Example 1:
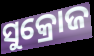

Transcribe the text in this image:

ସୁକ୍ରୋଜ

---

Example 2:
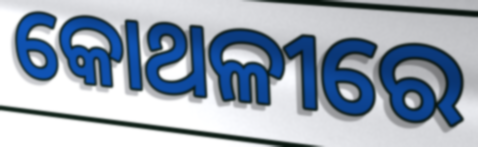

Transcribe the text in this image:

କୋଥଳୀରେ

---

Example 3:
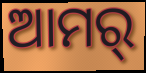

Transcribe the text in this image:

ଆମର୍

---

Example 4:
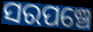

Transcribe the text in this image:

ସରପଞ୍ଚେ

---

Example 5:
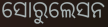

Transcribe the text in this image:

ସୋରୁଲେସନ